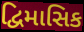
દ્વિમાસિક